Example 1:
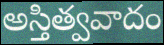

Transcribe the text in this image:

అస్తిత్వవాదం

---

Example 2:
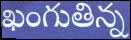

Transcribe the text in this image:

ఖంగుతిన్న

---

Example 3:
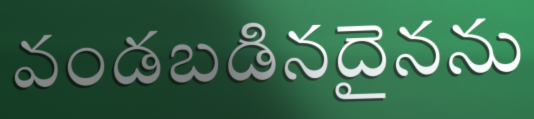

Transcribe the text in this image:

వండబడినదైనను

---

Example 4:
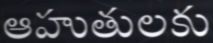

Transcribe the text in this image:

ఆహుతులకు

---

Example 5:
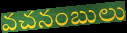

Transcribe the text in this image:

వచనంబులు